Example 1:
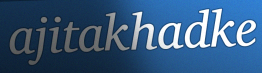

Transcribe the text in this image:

ajitakhadke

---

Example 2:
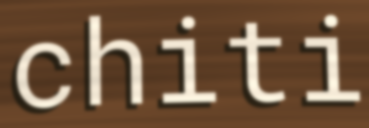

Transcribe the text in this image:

chiti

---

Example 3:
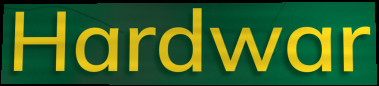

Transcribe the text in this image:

Hardwar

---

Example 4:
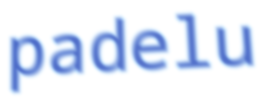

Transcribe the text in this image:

padelu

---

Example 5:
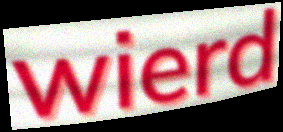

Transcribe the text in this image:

wierd